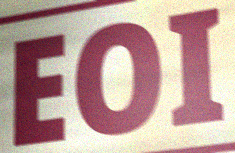
EOI